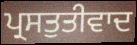
ਪ੍ਰਸਤੁਤੀਵਾਦ